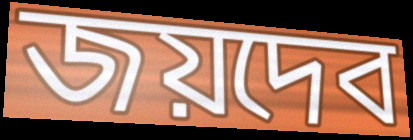
জয়দেব